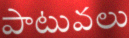
పాటువలు